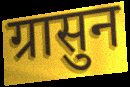
ग्रासुन